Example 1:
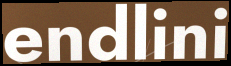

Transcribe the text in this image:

endlini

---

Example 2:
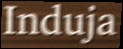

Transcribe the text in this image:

Induja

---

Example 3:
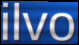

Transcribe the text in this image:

ilvo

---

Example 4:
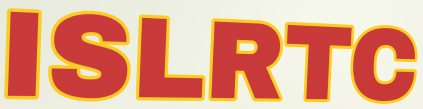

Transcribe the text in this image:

ISLRTC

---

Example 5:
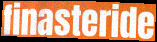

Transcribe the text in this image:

finasteride